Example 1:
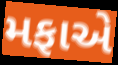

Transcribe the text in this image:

મફાએ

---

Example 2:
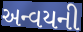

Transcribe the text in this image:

અન્વયની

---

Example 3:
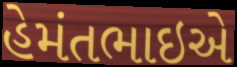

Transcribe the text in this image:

હેમંતભાઇએ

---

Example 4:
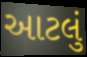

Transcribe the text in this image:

આટલું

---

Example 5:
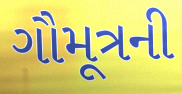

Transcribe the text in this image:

ગૌમૂત્રની